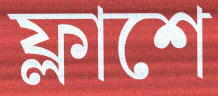
ফ্লাশে